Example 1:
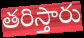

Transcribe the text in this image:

తరిస్తారు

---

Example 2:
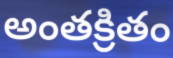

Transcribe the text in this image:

అంతక్రితం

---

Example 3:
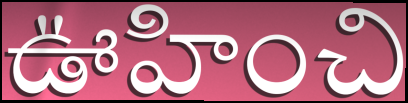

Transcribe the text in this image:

ఊహించి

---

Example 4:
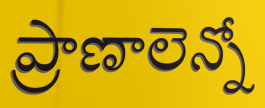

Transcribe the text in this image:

ప్రాణాలెన్నో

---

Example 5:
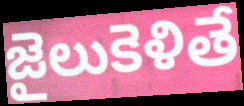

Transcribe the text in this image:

జైలుకెళితే